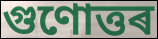
গুণোত্তৰ